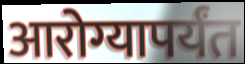
आरोग्यापर्यंत